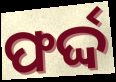
ଫର୍ଦ୍ଦ